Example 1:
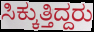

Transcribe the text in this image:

ಸಿಕ್ಕುತ್ತಿದ್ದರು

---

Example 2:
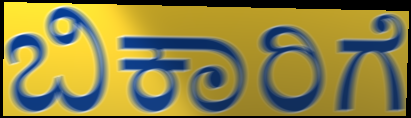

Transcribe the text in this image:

ಬಿಕಾರಿಗೆ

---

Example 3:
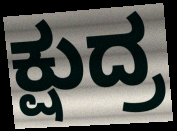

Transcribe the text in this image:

ಕ್ಷುದ್ರ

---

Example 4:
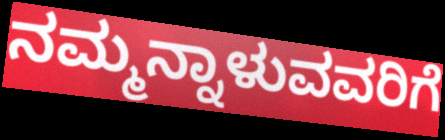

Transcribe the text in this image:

ನಮ್ಮನ್ನಾಳುವವರಿಗೆ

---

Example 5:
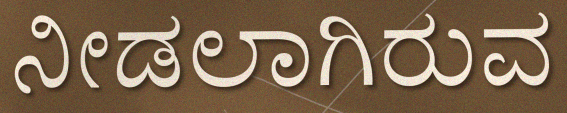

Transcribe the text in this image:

ನೀಡಲಾಗಿರುವ